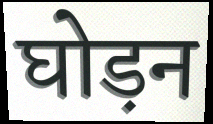
घोड़न